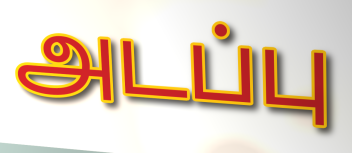
அடப்பு